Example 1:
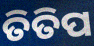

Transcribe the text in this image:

ତିତିପ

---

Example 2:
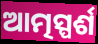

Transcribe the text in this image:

ଆତ୍ମସ୍ପର୍ଶ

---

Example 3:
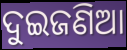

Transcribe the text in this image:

ଦୁଇଜଣିଆ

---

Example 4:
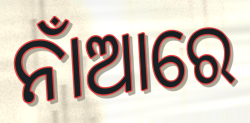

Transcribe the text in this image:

ନାଁଆରେ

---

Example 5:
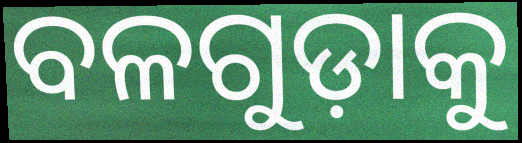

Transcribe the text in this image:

ବଳଗୁଡ଼ାକୁ